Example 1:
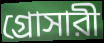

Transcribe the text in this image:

গ্রোসারী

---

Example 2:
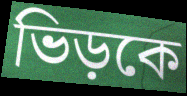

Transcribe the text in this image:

ভিড়কে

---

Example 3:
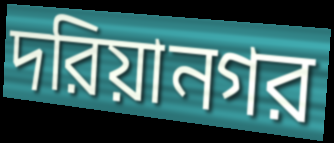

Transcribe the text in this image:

দরিয়ানগর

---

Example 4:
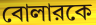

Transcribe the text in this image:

বোলারকে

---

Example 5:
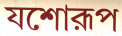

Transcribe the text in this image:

যশোরূপ